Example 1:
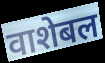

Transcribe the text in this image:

वाशेबल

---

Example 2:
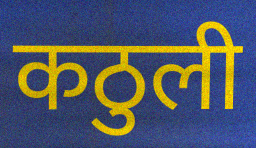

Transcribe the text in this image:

कठुली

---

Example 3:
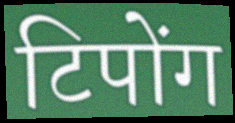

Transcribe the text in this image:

टिपोंग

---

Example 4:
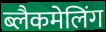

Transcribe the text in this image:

ब्लैकमेलिंग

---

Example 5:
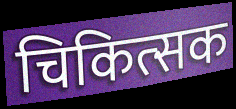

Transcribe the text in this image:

चिकित्‍सक